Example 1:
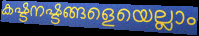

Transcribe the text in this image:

കഷ്ടനഷ്ടങ്ങളെയെല്ലാം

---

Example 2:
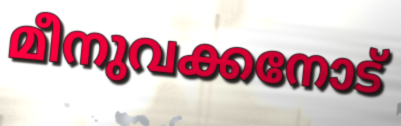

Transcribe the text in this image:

മീനുവക്കനോട്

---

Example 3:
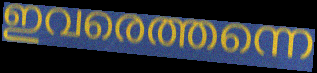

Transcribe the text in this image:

ഇവരെത്തന്നെ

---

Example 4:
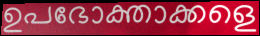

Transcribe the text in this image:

ഉപഭോക്താക്കളെ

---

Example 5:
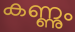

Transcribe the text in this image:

കണ്ണും